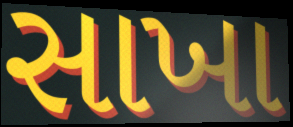
સાખા